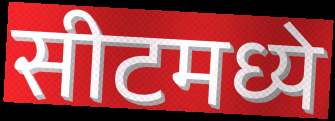
सीटमध्ये